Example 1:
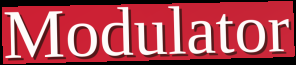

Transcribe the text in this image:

Modulator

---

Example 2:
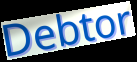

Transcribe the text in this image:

Debtor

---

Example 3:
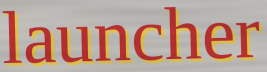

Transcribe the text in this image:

launcher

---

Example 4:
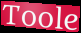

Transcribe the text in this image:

Toole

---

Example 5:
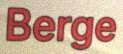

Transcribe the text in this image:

Berge